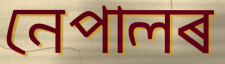
নেপালৰ